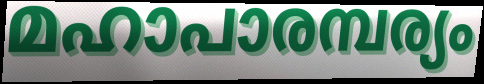
മഹാപാരമ്പര്യം